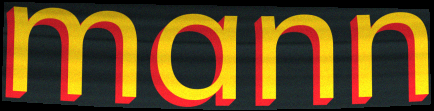
mann